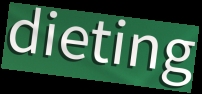
dieting